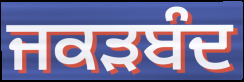
ਜਕੜਬੰਦ